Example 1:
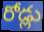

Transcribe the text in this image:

రోడ్లు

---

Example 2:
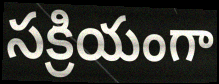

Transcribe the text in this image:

సక్రియంగా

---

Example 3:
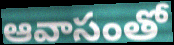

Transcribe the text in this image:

ఆవాసంతో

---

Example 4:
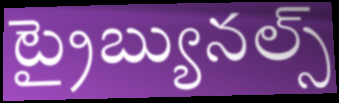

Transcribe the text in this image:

ట్రైబ్యునల్స్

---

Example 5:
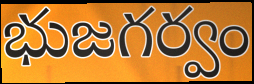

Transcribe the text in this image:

భుజగర్వం